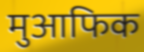
मुआफिक